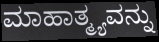
ಮಾಹಾತ್ಮ್ಯವನ್ನು